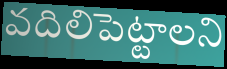
వదిలిపెట్టాలని